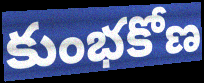
కుంభకోణ